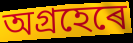
অগ্ৰহেৰে